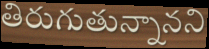
తిరుగుతున్నానని